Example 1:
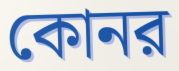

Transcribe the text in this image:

কোনর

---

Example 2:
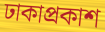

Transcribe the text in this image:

ঢাকাপ্রকাশ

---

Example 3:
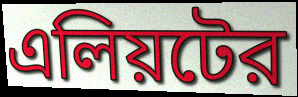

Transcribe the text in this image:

এলিয়টের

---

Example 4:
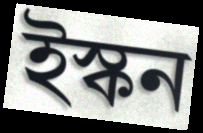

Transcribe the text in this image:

ইস্কন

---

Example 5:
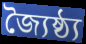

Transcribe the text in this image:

জ্যৈষ্ঠ্য